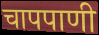
चापपाणी